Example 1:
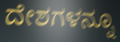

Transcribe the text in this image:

ದೇಶಗಳನ್ನೂ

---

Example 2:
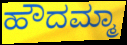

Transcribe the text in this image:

ಹೌದಮ್ಮಾ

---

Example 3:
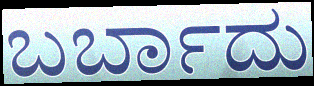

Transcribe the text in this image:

ಬರ್ಬಾದು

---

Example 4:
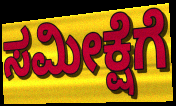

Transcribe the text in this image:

ಸಮೀಕ್ಷೆಗೆ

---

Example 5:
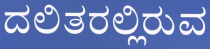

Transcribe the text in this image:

ದಲಿತರಲ್ಲಿರುವ